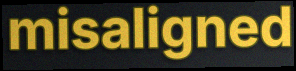
misaligned